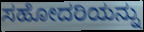
ಸಹೋದರಿಯನ್ನು